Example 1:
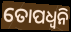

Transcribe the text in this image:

ତୋପଧ୍ୱନି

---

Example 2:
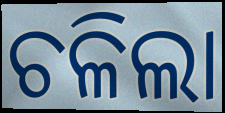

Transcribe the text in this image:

ଚଳିଲା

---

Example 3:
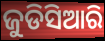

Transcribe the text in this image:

ଜୁଡିସିଆରି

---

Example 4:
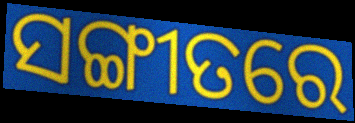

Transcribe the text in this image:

ସଙ୍ଗୀତରେ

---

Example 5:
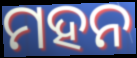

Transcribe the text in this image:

ମହନ